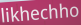
likhechho